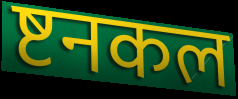
ष्टनकल